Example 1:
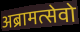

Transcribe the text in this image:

अब्रामत्सेवो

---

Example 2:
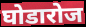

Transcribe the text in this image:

घोडारोज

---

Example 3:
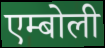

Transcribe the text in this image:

एम्बोली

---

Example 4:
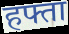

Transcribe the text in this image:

हफ्ता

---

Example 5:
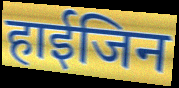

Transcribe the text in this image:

हाईजिन